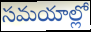
సమయాల్లో